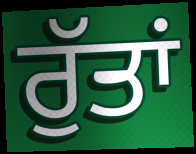
ਰੁੱਤਾਂ